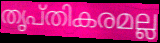
തൃപ്തികരമല്ല